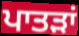
ਪਾਤੜਾਂ